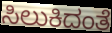
ಸಿಲುಕಿದಂತೆ